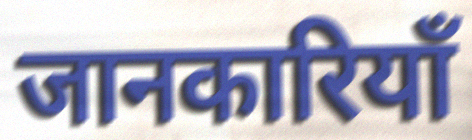
जानकारियाँ